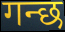
गन्छ